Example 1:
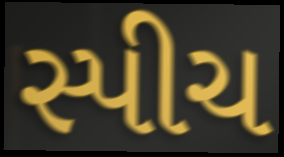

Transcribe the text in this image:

સ્પીચ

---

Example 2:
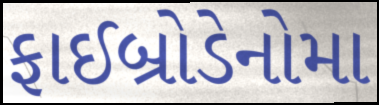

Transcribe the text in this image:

ફાઈબ્રોડેનોમા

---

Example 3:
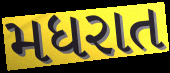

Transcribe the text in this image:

મધરાત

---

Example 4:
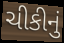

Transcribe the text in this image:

ચીકીનું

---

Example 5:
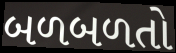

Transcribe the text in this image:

બળબળતો